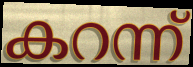
കറന്ന്